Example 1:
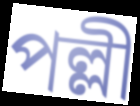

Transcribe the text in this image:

পল্লী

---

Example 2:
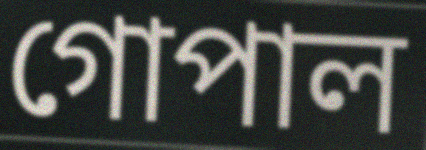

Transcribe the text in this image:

গোপাল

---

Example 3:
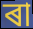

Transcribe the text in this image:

ৰা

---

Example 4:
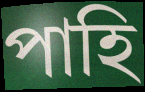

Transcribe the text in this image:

পাহি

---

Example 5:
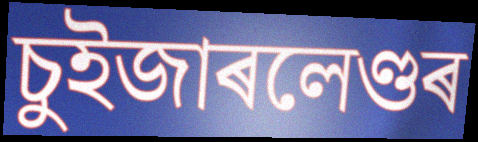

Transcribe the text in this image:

চুইজাৰলেণ্ডৰ